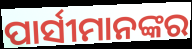
ପାର୍ସୀମାନଙ୍କର